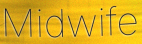
Midwife